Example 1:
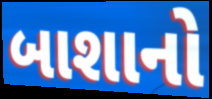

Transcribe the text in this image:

બાશાનો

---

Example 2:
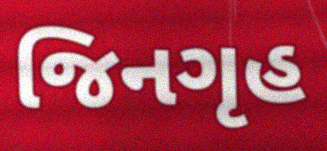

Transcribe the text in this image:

જિનગૃહ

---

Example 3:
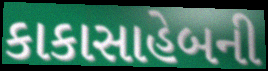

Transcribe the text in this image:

કાકાસાહેબની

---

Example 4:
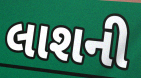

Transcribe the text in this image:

લાશની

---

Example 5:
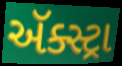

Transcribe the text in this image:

ઍક્સ્ટ્રા